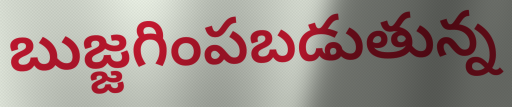
బుజ్జగింపబడుతున్న